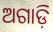
ଅଗାଡ଼ି